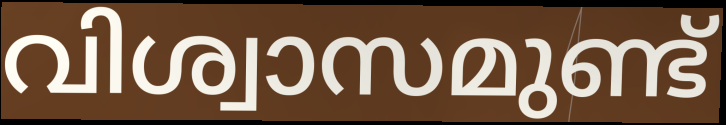
വിശ്വാസമുണ്ട്